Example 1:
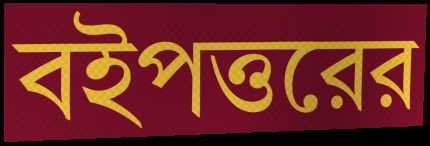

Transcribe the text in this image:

বইপত্তরের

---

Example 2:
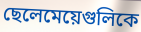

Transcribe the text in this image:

ছেলেমেয়েগুলিকে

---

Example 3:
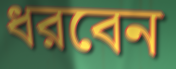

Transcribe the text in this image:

ধরবেন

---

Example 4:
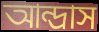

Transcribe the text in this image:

আন্দ্রাস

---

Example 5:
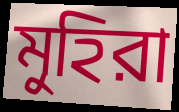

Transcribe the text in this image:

মুহিরা